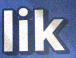
lik